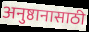
अनुष्ठानासाठी